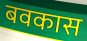
बवकास